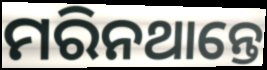
ମରିନଥାନ୍ତେ